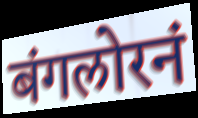
बंगलोरनं